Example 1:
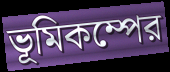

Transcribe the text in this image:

ভূমিকম্পের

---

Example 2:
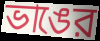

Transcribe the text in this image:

ভাঙের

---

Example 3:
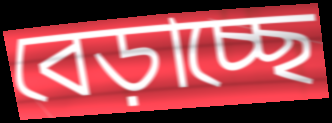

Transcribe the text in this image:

বেড়াচ্ছে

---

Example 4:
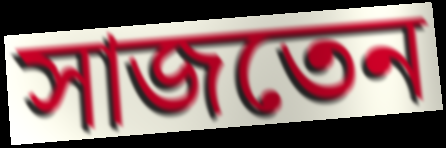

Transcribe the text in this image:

সাজতেন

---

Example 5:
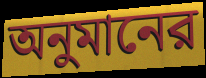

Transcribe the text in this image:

অনুমানের